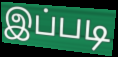
இப்படி